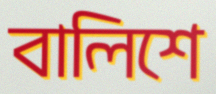
বালিশে